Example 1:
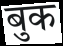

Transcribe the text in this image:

बुक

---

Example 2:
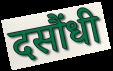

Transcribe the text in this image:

दसौंधी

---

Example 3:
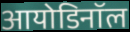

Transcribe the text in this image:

आयोडिनॉल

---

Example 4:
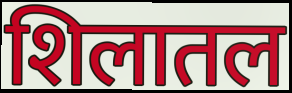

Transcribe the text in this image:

शिलातल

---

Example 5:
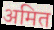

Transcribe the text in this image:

अमित